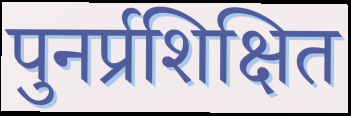
पुनर्प्रशिक्षित